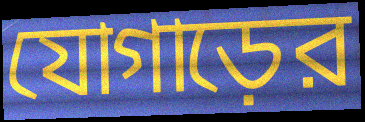
যোগাড়ের